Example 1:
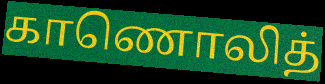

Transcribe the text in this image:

காணொலித்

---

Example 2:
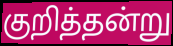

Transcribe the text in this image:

குறித்தன்று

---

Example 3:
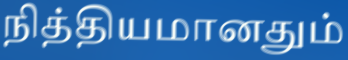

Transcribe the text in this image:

நித்தியமானதும்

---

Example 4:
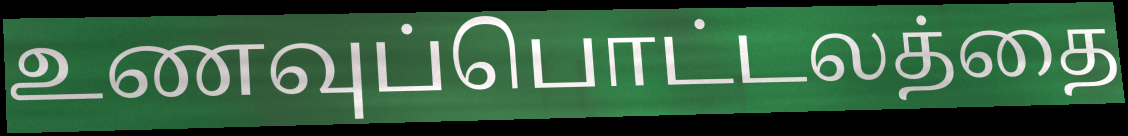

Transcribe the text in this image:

உணவுப்பொட்டலத்தை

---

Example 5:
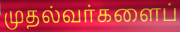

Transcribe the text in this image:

முதல்வர்களைப்